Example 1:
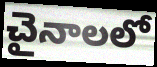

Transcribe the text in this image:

చైనాలలో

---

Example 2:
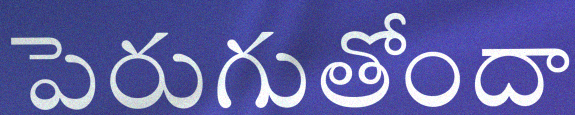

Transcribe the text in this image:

పెరుగుతోందా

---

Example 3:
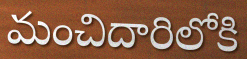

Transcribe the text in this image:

మంచిదారిలోకి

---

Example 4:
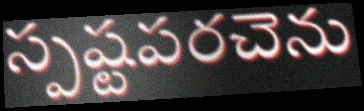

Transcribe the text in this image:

స్పష్టపరచెను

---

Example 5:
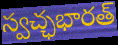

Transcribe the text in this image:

స్వచ్ఛభారత్